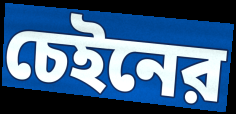
চেইনের